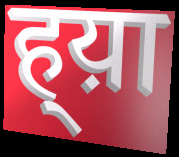
ह्य़ा